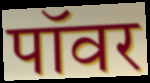
पॉवर